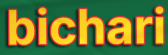
bichari